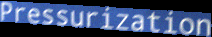
Pressurization